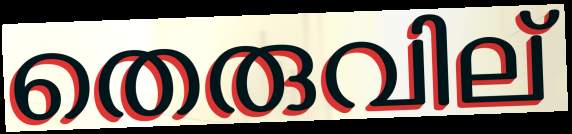
തെരുവില്